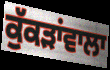
ਕੁੱਕੜਾਂਵਾਲਾ